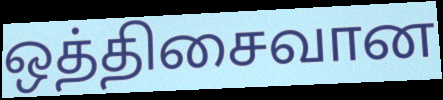
ஒத்திசைவான